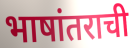
भाषांतराची